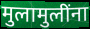
मुलामुलींना